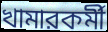
খামারকর্মী